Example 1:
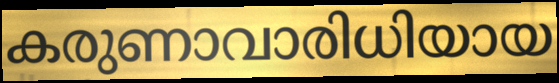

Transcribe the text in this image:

കരുണാവാരിധിയായ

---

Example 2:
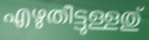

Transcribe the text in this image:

എഴുതീട്ടുള്ളതു്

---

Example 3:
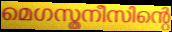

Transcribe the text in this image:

മെഗസ്തനീസിന്റെ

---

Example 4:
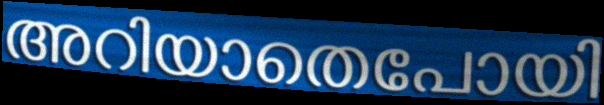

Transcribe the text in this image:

അറിയാതെപോയി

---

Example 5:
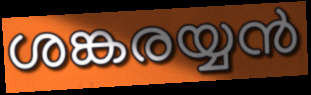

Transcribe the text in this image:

ശങ്കരയ്യൻ